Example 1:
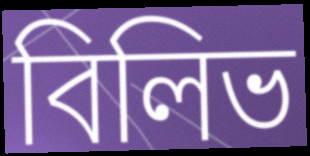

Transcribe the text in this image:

বিলিভ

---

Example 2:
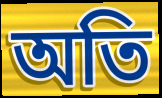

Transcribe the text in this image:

অতি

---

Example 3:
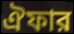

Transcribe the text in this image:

ঐফার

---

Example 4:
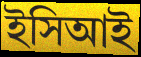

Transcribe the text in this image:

ইসিআই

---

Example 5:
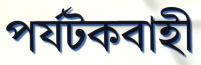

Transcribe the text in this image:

পর্যটকবাহী